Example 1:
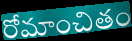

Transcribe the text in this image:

రోమాంచితం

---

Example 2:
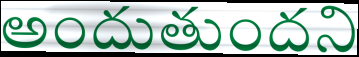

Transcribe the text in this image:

అందుతుందని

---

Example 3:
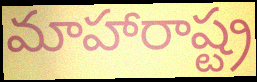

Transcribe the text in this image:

మాహారాష్ట్ర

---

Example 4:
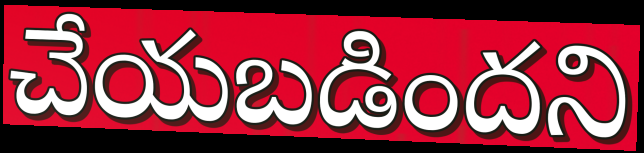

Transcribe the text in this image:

చేయబడిందని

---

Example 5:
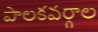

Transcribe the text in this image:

పాలకవర్గాల